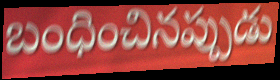
బంధించినప్పుడు